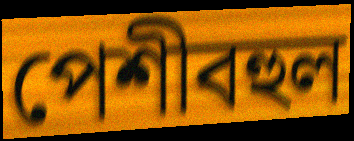
পেশীবহুল